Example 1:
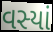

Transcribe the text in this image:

વસ્યાં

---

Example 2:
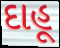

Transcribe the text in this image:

દાહૂ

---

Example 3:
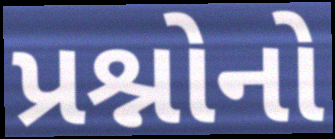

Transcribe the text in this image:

પ્રશ્નોનો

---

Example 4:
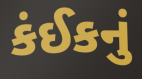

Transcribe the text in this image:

કંઈકનું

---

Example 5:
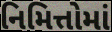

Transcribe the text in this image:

નિમિત્તોમાં